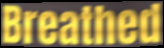
Breathed